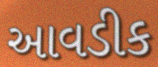
આવડીક